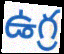
ఉగ్ర